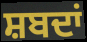
ਸ਼ਬਦਾਂ